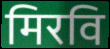
मिरवि